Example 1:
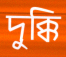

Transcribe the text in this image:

দুক্কি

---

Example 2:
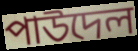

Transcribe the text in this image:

পাউদেল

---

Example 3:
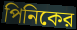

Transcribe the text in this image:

পিনিকের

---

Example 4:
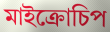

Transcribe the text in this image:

মাইক্রোচিপ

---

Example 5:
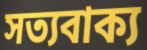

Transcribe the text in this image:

সত্যবাক্য